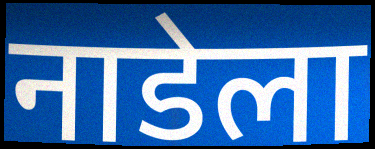
नाडेला